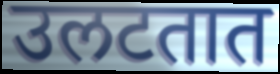
उलटतात